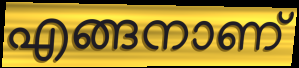
എങ്ങനാണ്